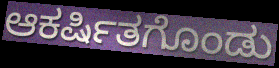
ಆಕರ್ಷಿತಗೊಂಡು